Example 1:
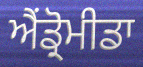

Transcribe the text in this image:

ਐਂਡ੍ਰੋਮੀਡਾ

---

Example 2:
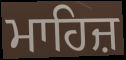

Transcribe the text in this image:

ਮਾਹਿਜ਼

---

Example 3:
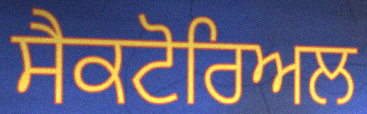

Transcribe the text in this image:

ਸੈਕਟੋਰਿਅਲ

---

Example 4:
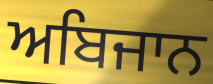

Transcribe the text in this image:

ਅਬਿਜਾਨ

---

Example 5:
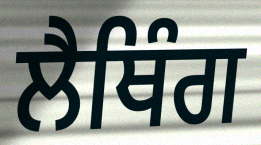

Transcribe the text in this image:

ਲੈਥਿੰਗ